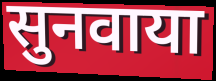
सुनवाया